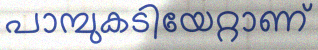
പാമ്പുകടിയേറ്റാണ്